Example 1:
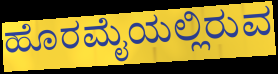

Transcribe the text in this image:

ಹೊರಮೈಯಲ್ಲಿರುವ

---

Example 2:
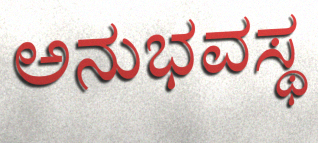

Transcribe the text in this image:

ಅನುಭವಸ್ಥ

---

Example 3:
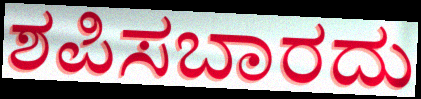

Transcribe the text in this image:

ಶಪಿಸಬಾರದು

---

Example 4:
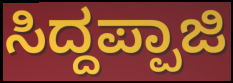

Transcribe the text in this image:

ಸಿದ್ದಪ್ಪಾಜಿ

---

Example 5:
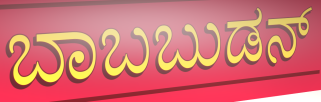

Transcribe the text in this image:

ಬಾಬಬುಡನ್